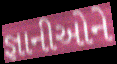
જ્ઞાનીઓને